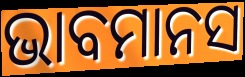
ଭାବମାନସ